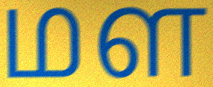
மள